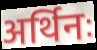
अर्थिनः